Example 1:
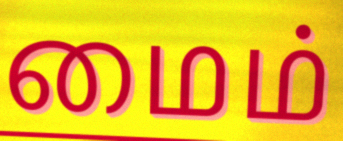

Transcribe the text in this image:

மைம்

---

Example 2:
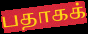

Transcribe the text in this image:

பதாகக்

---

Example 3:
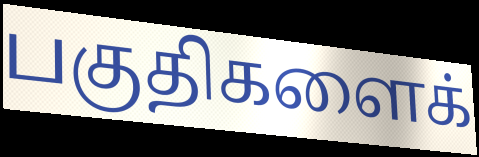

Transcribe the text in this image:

பகுதிகளைக்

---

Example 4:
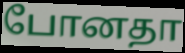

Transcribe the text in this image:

போனதா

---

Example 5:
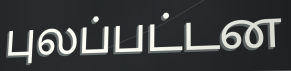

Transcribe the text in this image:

புலப்பட்டன